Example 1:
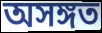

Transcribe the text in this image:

অসঙ্গত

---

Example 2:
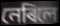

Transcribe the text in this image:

নেৰিলে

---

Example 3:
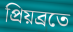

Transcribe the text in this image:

প্ৰিয়ব্ৰতে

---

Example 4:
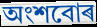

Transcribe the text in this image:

অংশবোৰ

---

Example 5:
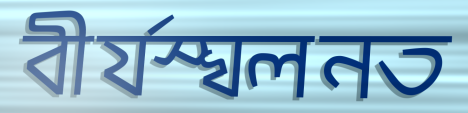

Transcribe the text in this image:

বীৰ্যস্খলনত